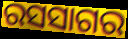
ରସସାଗର